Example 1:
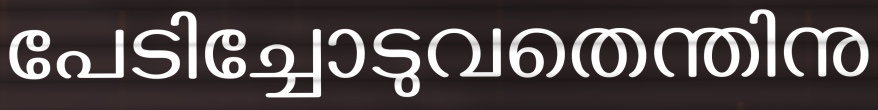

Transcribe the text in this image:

പേടിച്ചോടുവതെന്തിനു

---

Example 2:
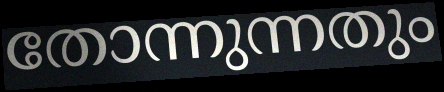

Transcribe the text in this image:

തോന്നുന്നതും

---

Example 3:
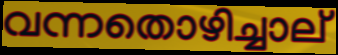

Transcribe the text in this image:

വന്നതൊഴിച്ചാല്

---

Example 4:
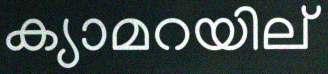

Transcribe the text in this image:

ക്യാമറയില്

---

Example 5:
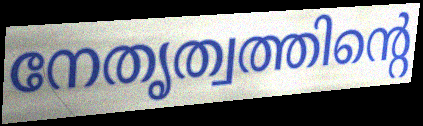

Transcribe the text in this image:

നേതൃത്വത്തിന്റെ